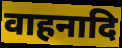
वाहनादि